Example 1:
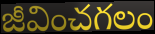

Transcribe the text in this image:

జీవించగలం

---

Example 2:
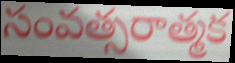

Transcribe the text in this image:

సంవత్సరాత్మక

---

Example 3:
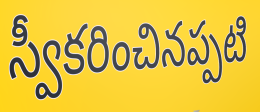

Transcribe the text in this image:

స్వీకరించినప్పటి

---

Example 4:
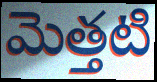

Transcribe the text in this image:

మెత్తటి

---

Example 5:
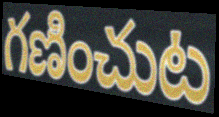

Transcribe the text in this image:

గణించుట